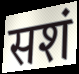
सशं